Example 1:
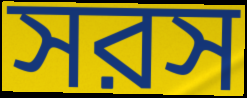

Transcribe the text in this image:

সরস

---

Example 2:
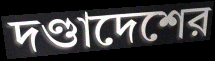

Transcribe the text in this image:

দণ্ডাদেশের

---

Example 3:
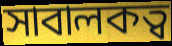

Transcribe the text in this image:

সাবালকত্ব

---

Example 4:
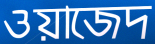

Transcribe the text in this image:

ওয়াজেদ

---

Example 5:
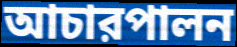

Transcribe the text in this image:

আচারপালন